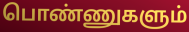
பொண்ணுகளும்